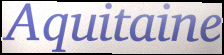
Aquitaine